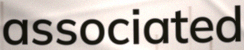
associated